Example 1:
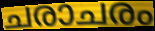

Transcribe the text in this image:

ചരാചരം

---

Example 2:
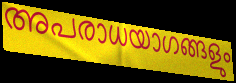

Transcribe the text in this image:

അപരാധയാഗങ്ങളും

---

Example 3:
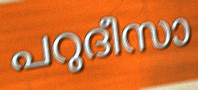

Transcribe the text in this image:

പറുദീസാ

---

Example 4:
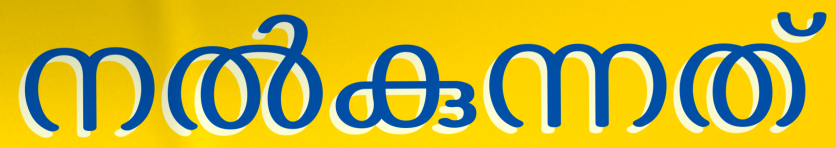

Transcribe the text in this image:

നൽകുന്നത്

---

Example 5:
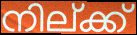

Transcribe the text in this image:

നില്ക്ക്